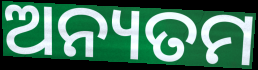
ଅନ୍ୟତମ